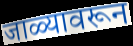
जाळ्यावरून